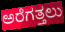
ಅರೆಗತ್ತಲು